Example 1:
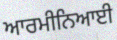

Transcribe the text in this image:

ਆਰਮੀਨਿਆਈ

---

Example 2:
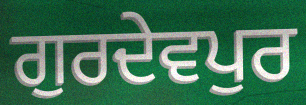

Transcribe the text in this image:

ਗੁਰਦੇਵਪੁਰ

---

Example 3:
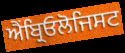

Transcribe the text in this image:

ਐਂਬ੍ਰਿਓਲੋਜਿਸਟ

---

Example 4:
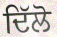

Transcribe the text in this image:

ਦਿੱਲੋ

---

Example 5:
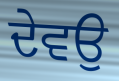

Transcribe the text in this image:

ਦੇਵਉ